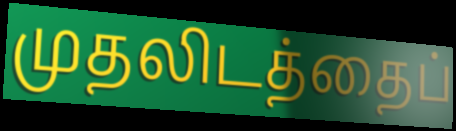
முதலிடத்தைப்